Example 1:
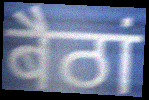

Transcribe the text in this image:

बैठां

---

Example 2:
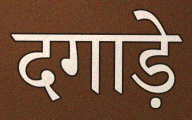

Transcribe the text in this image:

दगाड़े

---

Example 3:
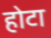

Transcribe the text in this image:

होटा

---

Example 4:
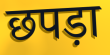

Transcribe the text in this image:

छपड़ा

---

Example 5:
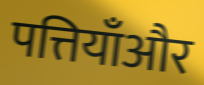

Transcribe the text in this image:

पत्तियाँऔर